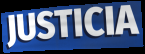
JUSTICIA